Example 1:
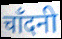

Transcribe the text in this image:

चाँदनी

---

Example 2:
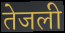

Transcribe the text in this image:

तेजली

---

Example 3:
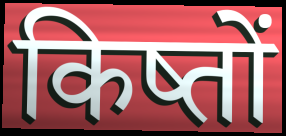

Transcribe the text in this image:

किष्तों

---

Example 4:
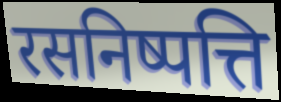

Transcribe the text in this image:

रसनिष्पत्ति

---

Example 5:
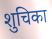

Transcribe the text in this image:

शुचिका